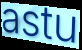
astu